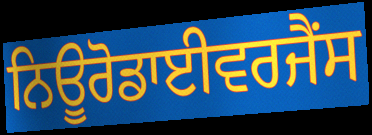
ਨਿਊਰੋਡਾਈਵਰਜੈਂਸ